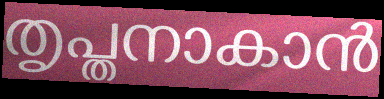
തൃപ്തനാകാൻ